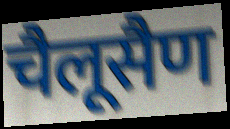
चैलूसैण